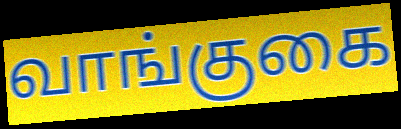
வாங்குகை